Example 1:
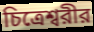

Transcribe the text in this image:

চিত্রেশ্বরীর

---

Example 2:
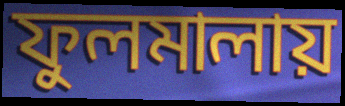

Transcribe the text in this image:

ফুলমালায়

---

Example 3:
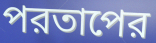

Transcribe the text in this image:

পরতাপের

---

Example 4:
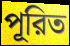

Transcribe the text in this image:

পূরিত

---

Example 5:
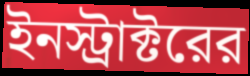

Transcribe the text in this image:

ইনস্ট্রাক্টরের